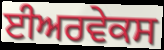
ਈਅਰਵੇਕਸ